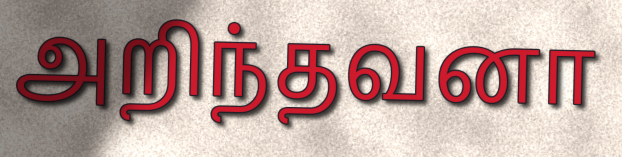
அறிந்தவனா